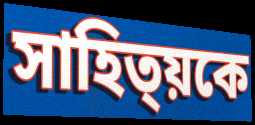
সাহিত্য়কে